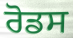
ਰੋਡਸ